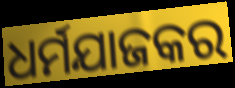
ଧର୍ମଯାଜକର